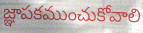
జ్ఞాపకముంచుకోవాలి